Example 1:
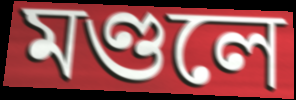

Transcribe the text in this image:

মণ্ডলে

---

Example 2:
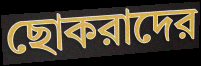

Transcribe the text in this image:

ছোকরাদের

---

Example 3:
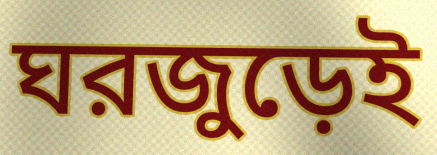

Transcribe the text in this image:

ঘরজুড়েই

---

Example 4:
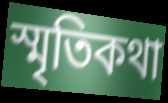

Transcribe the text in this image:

স্মৃতিকথা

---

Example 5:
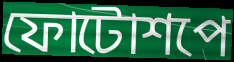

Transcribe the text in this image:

ফোটোশপে